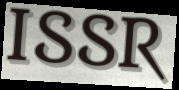
ISSR